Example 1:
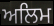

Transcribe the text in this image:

ਅਲਿਮ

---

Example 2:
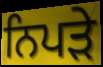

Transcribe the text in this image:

ਨਿਪੜੇ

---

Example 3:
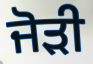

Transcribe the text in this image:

ਜੋਡ਼ੀ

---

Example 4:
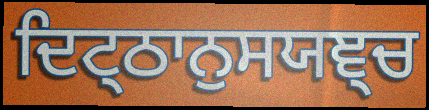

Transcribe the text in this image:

ਦਿਟ੍ਠਾਨੁਸਯਞ੍ਚ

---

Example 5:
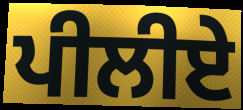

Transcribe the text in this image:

ਪੀਲੀਏ